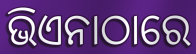
ଭିଏନାଠାରେ